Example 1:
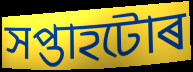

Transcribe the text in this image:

সপ্তাহটোৰ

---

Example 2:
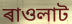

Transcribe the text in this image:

ৰাওলাট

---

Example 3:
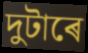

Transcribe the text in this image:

দুটাৰে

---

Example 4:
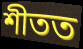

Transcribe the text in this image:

শীতত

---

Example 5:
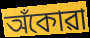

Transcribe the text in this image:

অঁকোৱা